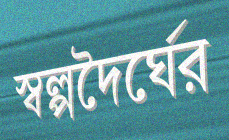
স্বল্পদৈর্ঘের